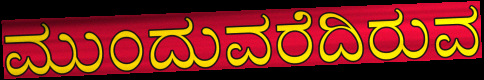
ಮುಂದುವರೆದಿರುವ